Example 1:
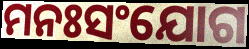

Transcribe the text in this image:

ମନଃସଂଯୋଗ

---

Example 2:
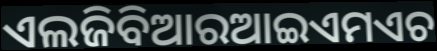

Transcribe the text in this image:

ଏଲଜିବିଆରଆଇଏମଏଚ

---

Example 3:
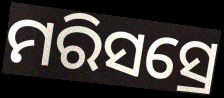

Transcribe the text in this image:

ମରିସସ୍ରେ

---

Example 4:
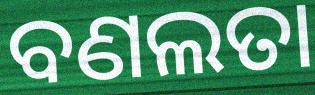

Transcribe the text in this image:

ବଣଲତା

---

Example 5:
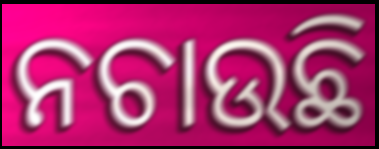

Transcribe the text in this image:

ନଚାଉଛି